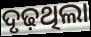
ଦୃଢ଼ଥିଲା